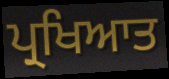
ਪ੍ਰਖਿਆਤ